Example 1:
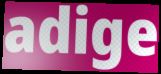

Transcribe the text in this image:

adige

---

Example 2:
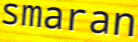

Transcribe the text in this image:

smaran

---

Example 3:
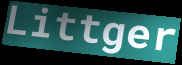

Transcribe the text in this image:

Littger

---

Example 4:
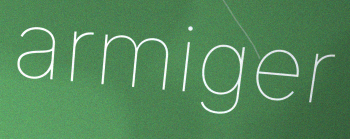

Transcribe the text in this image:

armiger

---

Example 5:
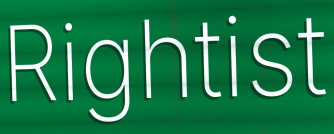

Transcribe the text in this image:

Rightist